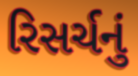
રિસર્ચનું